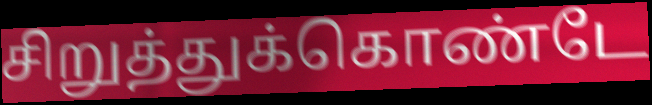
சிறுத்துக்கொண்டே